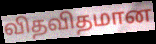
விதவிதமான